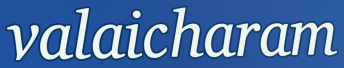
valaicharam